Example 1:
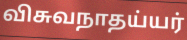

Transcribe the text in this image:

விசுவநாதய்யர்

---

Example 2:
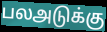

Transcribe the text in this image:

பலஅடுக்கு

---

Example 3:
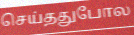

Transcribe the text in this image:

செய்ததுபோல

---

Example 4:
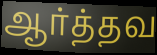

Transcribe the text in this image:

ஆர்த்தவ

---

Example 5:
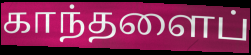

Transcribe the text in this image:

காந்தளைப்